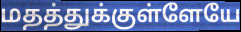
மதத்துக்குள்ளேயே